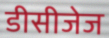
डीसीजेज